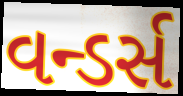
વન્ડર્સ